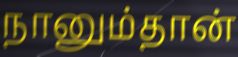
நானும்தான்